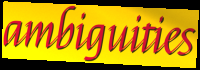
ambiguities